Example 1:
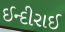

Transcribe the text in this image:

ઈન્દીરાઈ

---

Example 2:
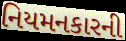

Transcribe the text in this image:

નિયમનકારની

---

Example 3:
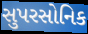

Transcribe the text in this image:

સુપરસોનિક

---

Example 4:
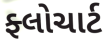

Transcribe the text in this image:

ફ્લોચાર્ટ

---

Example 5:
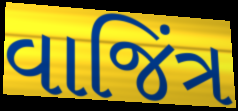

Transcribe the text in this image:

વાજિંત્ર